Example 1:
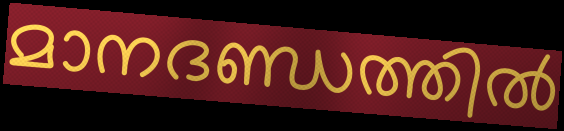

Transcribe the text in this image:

മാനദണ്ഡത്തിൽ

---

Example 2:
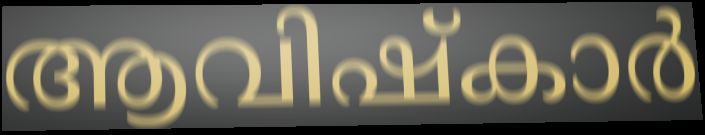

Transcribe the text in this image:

ആവിഷ്കാർ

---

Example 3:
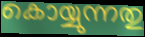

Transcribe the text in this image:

കൊയ്യുന്നതു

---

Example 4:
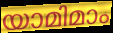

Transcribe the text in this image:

യാമിമാം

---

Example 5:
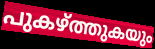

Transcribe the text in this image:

പുകഴ്ത്തുകയും